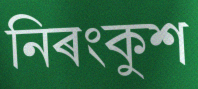
নিৰংকুশ